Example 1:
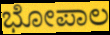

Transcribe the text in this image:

ಭೋಪಾಲ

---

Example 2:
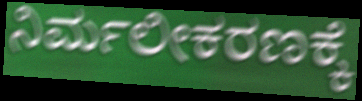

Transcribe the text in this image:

ನಿರ್ಮಲೀಕರಣಕ್ಕೆ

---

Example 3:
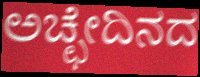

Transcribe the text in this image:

ಅಚ್ಛೇದಿನದ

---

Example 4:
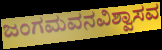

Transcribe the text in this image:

ಜಂಗಮವನವಿಶ್ವಾಸವ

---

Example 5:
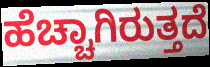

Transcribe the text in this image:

ಹೆಚ್ಚಾಗಿರುತ್ತದೆ